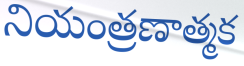
నియంత్రణాత్మక